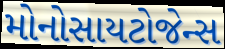
મોનોસાયટોજેન્સ